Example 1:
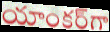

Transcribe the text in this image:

యాంకర్‌గా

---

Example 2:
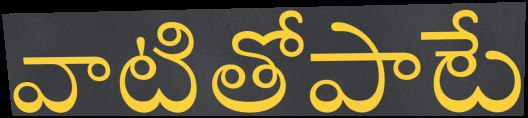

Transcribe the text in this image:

వాటితోపాటే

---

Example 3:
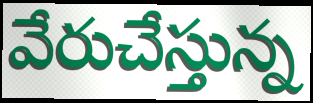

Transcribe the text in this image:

వేరుచేస్తున్న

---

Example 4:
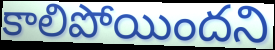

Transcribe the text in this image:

కాలిపోయిందని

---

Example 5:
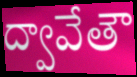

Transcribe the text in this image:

ద్వావేతౌ